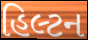
હિલ્ટન